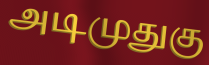
அடிமுதுகு